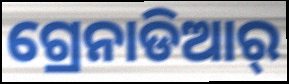
ଗ୍ରେନାଡିଆର୍